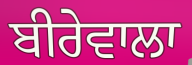
ਬੀਰੇਵਾਲਾ